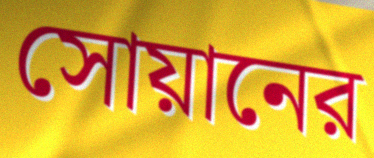
সোয়ানের